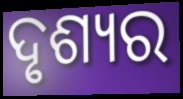
ଦୃଶ୍ୟର